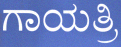
ಗಾಯತ್ರಿ